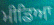
ਮੀਡਿਆ